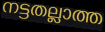
നട്ടതല്ലാത്ത